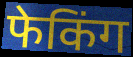
फेकिंग